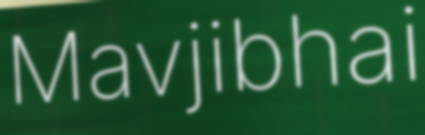
Mavjibhai